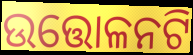
ଉତ୍ତୋଳନଟି